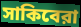
সাকিবেরা